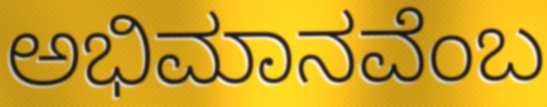
ಅಭಿಮಾನವೆಂಬ